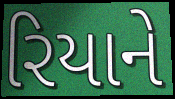
રિયાને